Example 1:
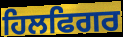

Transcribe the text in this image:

ਹਿਲਫਿਗਰ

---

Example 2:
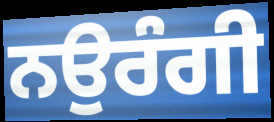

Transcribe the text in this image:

ਨਉਰੰਗੀ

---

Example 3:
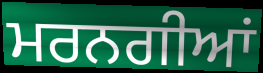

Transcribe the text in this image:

ਮਰਨਗੀਆਂ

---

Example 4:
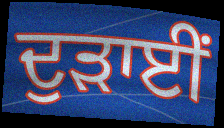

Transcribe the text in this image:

ਦੁੜਾਈਂ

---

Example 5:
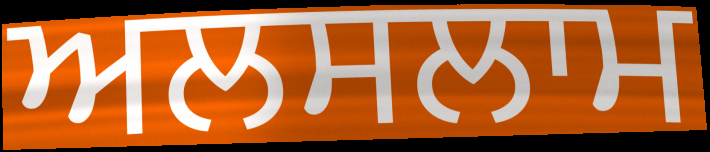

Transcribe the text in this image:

ਅਲਸਲਾਮ